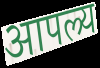
आपल्य